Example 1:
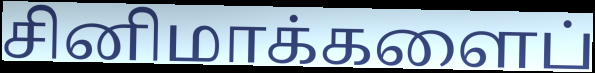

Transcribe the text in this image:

சினிமாக்களைப்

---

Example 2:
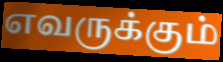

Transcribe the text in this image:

எவருக்கும்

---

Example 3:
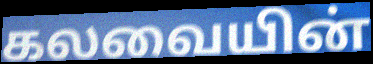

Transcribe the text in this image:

கலவையின்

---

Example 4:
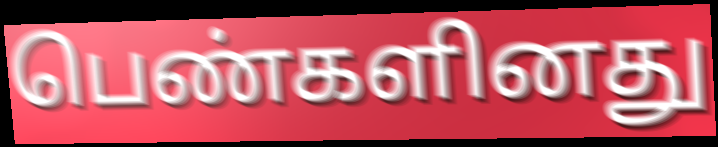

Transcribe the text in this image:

பெண்களினது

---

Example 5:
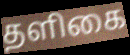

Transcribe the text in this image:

தளிகை